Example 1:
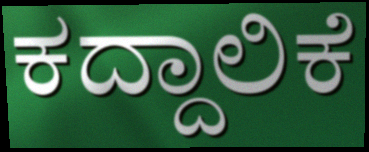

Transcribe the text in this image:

ಕದ್ದಾಲಿಕೆ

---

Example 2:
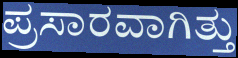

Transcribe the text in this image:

ಪ್ರಸಾರವಾಗಿತ್ತು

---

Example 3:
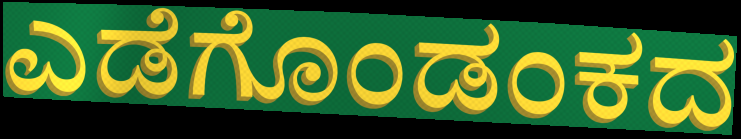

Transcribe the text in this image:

ಎಡೆಗೊಂಡಂಕದ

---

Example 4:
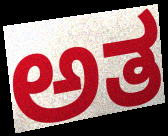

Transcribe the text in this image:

ಅತ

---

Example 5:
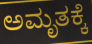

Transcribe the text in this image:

ಅಮೃತಕ್ಕೆ